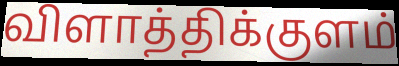
விளாத்திக்குளம்